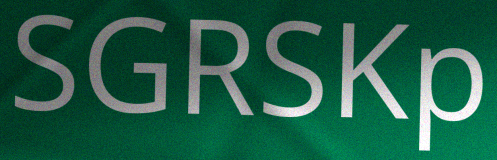
SGRSKp